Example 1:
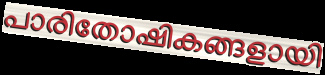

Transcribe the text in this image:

പാരിതോഷികങ്ങളായി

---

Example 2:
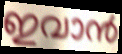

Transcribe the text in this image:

ഇവാൻ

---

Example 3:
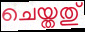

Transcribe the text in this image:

ചെയ്തതു്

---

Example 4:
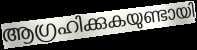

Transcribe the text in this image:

ആഗ്രഹിക്കുകയുണ്ടായി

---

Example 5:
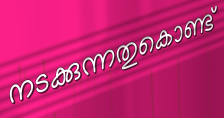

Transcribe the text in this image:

നടക്കുന്നതുകൊണ്ട്